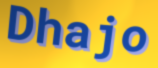
Dhajo